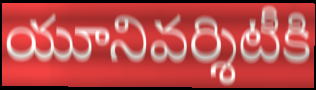
యూనివర్శిటీకి